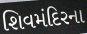
શિવમંદિરના